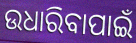
ଉଧାରିବାପାଇଁ